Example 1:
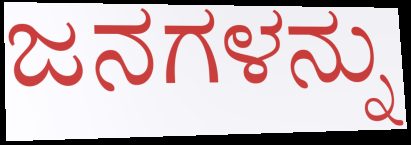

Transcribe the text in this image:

ಜನಗಳನ್ನು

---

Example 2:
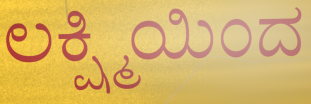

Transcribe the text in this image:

ಲಕ್ಷ್ಮಿಯಿಂದ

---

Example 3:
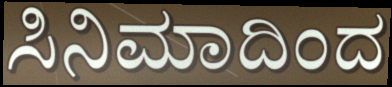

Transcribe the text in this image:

ಸಿನಿಮಾದಿಂದ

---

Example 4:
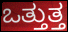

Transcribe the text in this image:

ಒತ್ತುತ್ತ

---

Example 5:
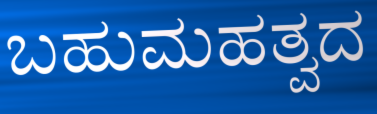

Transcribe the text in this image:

ಬಹುಮಹತ್ವದ